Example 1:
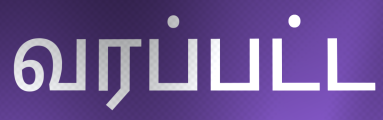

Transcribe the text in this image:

வரப்பட்ட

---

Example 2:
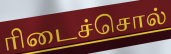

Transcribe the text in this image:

ரிடைச்சொல்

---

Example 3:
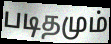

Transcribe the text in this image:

படிதமும்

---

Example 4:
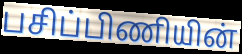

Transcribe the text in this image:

பசிப்பிணியின்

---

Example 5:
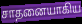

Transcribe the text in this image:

சாதனையாகிய